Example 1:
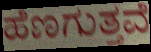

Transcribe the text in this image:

ಹೆಣಗುತ್ತವೆ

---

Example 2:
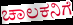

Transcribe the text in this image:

ಚಾಲಕನಿಗೆ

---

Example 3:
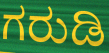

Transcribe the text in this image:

ಗರುಡಿ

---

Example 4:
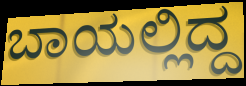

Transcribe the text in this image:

ಬಾಯಲ್ಲಿದ್ದ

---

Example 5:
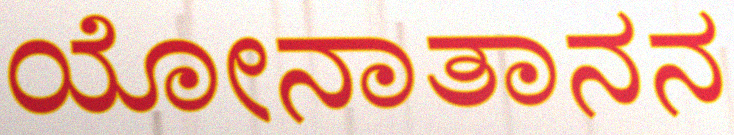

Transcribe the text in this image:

ಯೋನಾತಾನನ